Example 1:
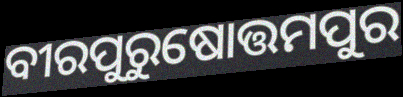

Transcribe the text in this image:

ବୀରପୁରୁଷୋତ୍ତମପୁର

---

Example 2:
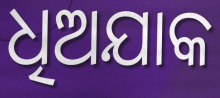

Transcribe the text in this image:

ଧିଅଯାକ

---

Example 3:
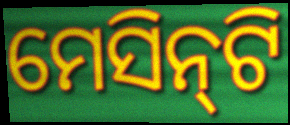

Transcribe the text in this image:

ମେସିନ୍‌ଟି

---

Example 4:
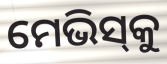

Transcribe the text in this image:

ମେଭିସ୍‌କୁ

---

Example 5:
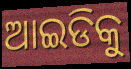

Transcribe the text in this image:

ଆଇଡିକୁ